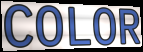
COLOR